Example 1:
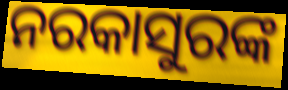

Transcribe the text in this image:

ନରକାସୁରଙ୍କ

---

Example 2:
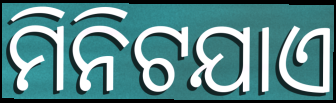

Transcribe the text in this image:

ମିନିଟଯାଏ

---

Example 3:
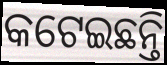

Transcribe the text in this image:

କଟେଇଛନ୍ତି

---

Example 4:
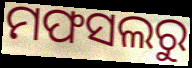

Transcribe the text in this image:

ମଫସଲରୁ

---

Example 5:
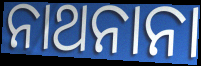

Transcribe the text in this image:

ନାଥନାନା